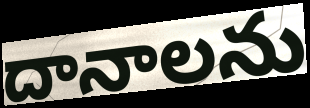
దానాలను